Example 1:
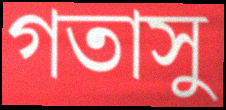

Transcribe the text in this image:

গতাসু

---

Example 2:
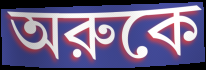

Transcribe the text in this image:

অরুকে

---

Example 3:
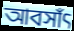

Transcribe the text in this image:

আবসাঁৎ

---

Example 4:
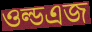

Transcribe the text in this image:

ওল্ডএজ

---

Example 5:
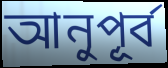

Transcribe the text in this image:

আনুপূর্ব